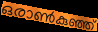
ഒരാൺകുഞ്ഞ്